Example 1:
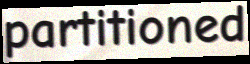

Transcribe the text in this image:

partitioned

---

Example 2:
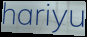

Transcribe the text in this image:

hariyu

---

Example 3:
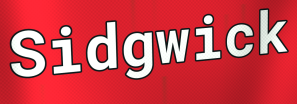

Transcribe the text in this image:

Sidgwick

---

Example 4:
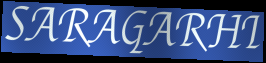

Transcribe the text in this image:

SARAGARHI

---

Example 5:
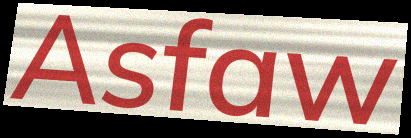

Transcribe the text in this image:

Asfaw